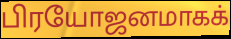
பிரயோஜனமாகக்